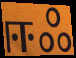
ஈஃ